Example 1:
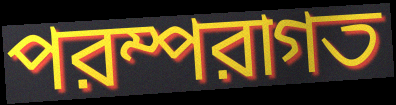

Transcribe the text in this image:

পরম্পরাগত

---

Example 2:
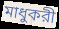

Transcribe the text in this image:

মাধুকরী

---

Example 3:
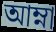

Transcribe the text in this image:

আম্না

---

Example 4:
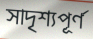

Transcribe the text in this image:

সাদৃশ্যপূর্ণ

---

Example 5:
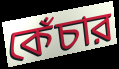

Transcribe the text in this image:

কেঁচার